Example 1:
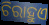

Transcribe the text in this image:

ଚିରାହୁଏ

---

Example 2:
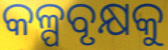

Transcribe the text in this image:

କଳ୍ପବୃକ୍ଷକୁ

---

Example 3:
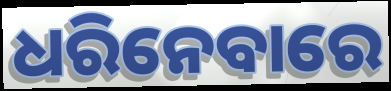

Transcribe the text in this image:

ଧରିନେବାରେ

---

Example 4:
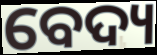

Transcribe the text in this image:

ବେଦ୍ୟ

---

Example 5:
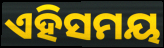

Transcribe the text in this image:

ଏହିସମୟ